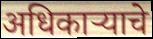
अधिकाऱ्याचे